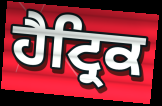
ਹੈਟ੍ਰਿਕ